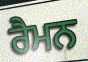
ਰੈਮਨ